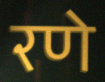
रणे